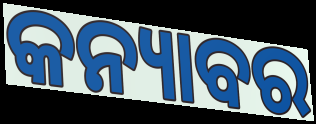
କନ୍ୟାବର